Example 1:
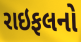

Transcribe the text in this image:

રાઇફલનો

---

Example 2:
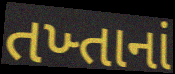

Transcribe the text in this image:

તખ્તાનાં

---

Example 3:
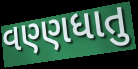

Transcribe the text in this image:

વણ્ણધાતુ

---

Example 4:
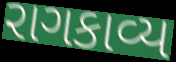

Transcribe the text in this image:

રાગકાવ્ય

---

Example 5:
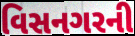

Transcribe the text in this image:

વિસનગરની